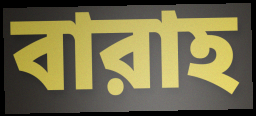
বারাহ